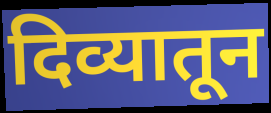
दिव्यातून